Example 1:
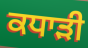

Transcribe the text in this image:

ਕਧਾੜੀ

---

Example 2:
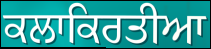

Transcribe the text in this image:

ਕਲਾਕਿਰਤੀਆ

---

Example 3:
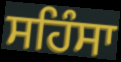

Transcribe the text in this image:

ਸਹਿੰਸਾ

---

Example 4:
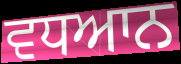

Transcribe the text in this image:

ਵਧਆਨ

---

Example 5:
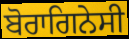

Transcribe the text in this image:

ਬੋਰਾਗਿਨੇਸੀ